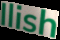
Ilish